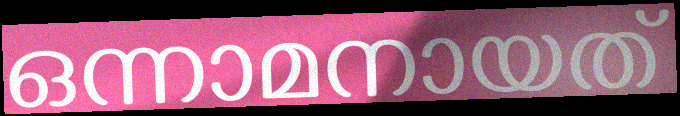
ഒന്നാമനായത്